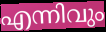
എന്നിവും